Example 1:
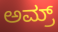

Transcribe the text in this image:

ಅಮ್ರ್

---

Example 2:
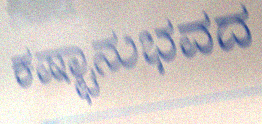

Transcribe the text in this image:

ಕಷ್ಟಾನುಭವದ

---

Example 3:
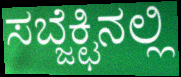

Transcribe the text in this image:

ಸಬ್ಜೆಕ್ಟಿನಲ್ಲಿ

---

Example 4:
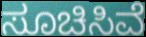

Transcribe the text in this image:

ಸೂಚಿಸಿವೆ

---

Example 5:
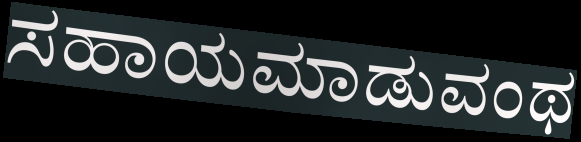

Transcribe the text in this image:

ಸಹಾಯಮಾಡುವಂಥ